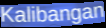
Kalibangan